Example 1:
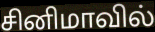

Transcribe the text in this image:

சினிமாவில்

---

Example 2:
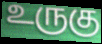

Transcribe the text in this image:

உருகு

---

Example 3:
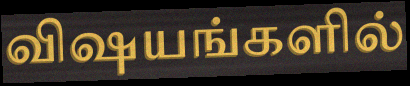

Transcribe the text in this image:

விஷயங்களில்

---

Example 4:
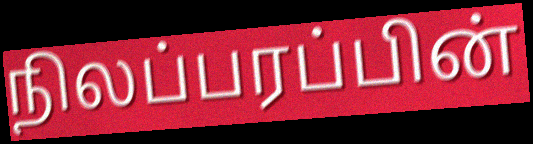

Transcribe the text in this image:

நிலப்பரப்பின்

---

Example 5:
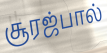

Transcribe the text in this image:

சூரஜ்பால்